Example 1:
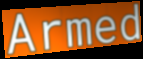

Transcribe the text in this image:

Armed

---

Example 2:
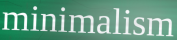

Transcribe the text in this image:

minimalism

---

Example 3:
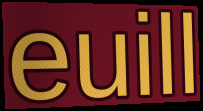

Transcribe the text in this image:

euill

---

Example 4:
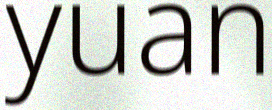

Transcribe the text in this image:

yuan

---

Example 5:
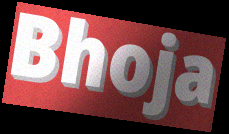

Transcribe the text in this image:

Bhoja